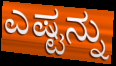
ಎಷ್ಟನ್ನು